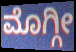
ಮೊಗ್ಗೀ